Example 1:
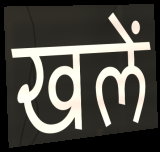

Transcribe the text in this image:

खलें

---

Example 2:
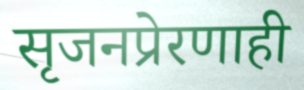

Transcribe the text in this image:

सृजनप्रेरणाही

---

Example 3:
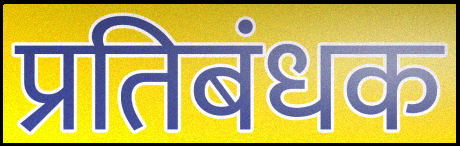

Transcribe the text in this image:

प्रतिबंधक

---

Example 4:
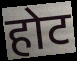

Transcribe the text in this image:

होट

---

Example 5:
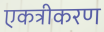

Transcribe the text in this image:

एकत्रीकरण